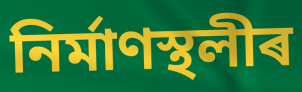
নিৰ্মাণস্থলীৰ